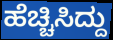
ಹೆಚ್ಚಿಸಿದ್ದು